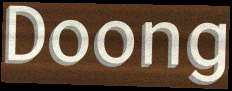
Doong